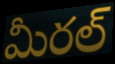
మీరల్